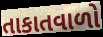
તાકાતવાળો